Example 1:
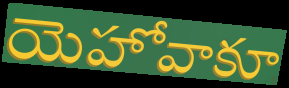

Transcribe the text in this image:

యెహోవాకూ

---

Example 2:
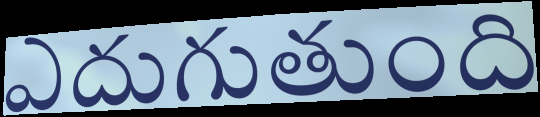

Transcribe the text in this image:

ఎదుగుతుంది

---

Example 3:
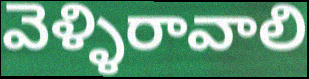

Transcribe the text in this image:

వెళ్ళిరావాలి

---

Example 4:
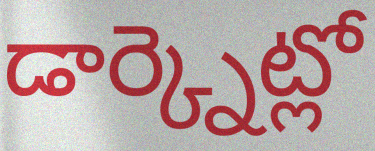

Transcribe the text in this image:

డార్క్నెట్లో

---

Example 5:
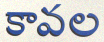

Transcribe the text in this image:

కావల